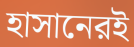
হাসানেরই